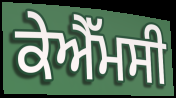
ਕੇਐੱਮਸੀ